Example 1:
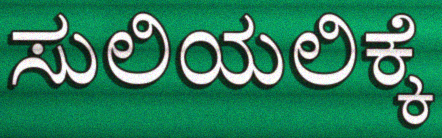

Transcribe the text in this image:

ಸುಲಿಯಲಿಕ್ಕೆ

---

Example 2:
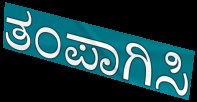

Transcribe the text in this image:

ತಂಪಾಗಿಸಿ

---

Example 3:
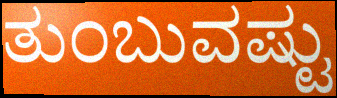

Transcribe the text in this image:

ತುಂಬುವಷ್ಟು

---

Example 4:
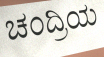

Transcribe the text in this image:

ಚಂದ್ರಿಯ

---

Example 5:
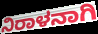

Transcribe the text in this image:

ನಿರಾಳನಾಗಿ